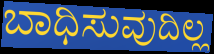
ಬಾಧಿಸುವುದಿಲ್ಲ